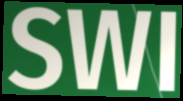
SWI